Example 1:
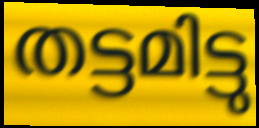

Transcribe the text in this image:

തട്ടമിട്ടു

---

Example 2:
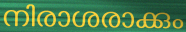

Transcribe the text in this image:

നിരാശരാക്കും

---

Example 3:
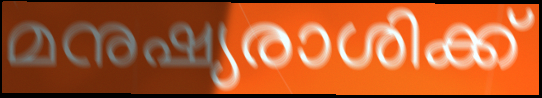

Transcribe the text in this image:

മനുഷ്യരാശിക്ക്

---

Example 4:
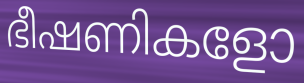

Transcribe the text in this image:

ഭീഷണികളോ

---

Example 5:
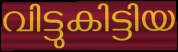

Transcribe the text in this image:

വിട്ടുകിട്ടിയ